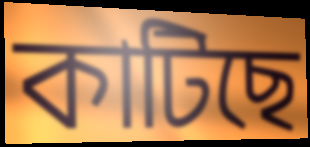
কাটিছে